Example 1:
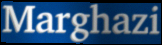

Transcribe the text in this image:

Marghazi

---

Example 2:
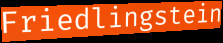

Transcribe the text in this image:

Friedlingstein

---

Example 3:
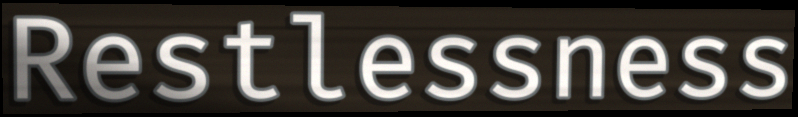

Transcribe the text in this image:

Restlessness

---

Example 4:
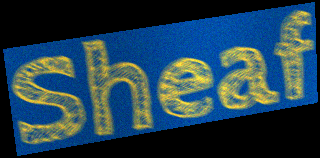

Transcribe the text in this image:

Sheaf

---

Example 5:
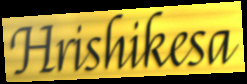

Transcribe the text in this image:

Hrishikesa